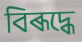
বিৰূদ্ধে